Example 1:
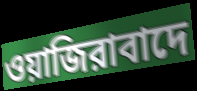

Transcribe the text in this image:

ওয়াজিরাবাদে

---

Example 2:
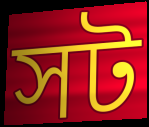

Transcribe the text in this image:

সট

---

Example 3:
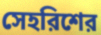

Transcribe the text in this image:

সেহরিশের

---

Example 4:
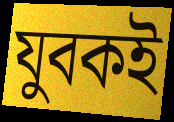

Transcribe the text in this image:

যুবকই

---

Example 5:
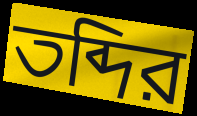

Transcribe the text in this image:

তব্দির